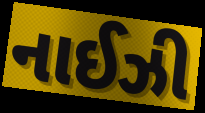
નાઈઝી